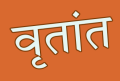
वृतांत